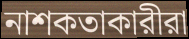
নাশকতাকারীরা